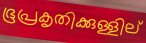
ഭൂപ്രകൃതിക്കുള്ളില്